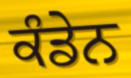
ਕੰਡੇਨ